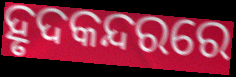
ହୃଦକନ୍ଦରରେ